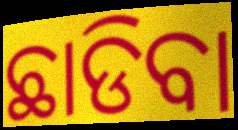
ଛାଡିବା